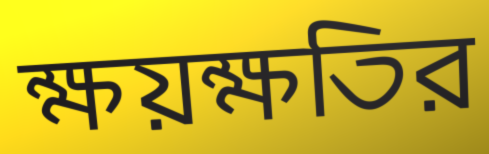
ক্ষয়ক্ষতির